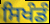
ਸਿਖੰਡੰ